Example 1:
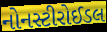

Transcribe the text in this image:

નોનસ્ટીરોઈડલ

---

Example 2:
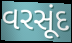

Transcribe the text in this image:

વરસૂંદ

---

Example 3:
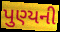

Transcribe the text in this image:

પુણ્યની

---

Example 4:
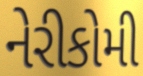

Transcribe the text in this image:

નેરીકોમી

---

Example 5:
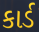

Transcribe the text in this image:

કાર્ડ